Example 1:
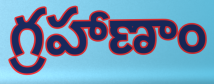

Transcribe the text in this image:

గ్రహాణాం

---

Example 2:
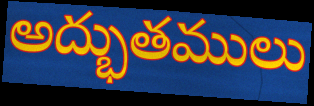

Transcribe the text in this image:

అద్భుతములు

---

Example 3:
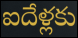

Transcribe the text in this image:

ఐదేళ్లకు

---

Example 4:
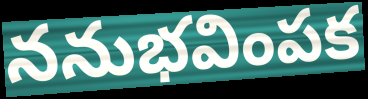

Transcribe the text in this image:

ననుభవింపక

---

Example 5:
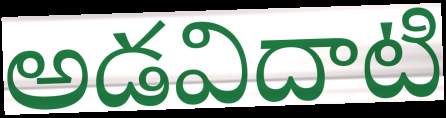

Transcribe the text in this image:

అడవిదాటి